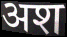
अश